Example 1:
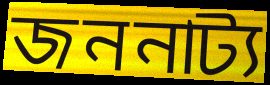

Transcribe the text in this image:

জননাট্য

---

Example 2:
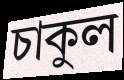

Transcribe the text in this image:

চাকুল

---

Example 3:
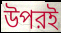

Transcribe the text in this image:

উপরই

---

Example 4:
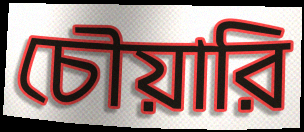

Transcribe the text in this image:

চৌয়ারি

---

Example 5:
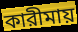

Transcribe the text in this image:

কারীমায়